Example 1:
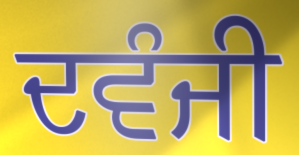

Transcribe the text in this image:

ਦਵੰਜੀ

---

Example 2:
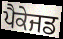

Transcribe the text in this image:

ਪੈਕੇਜਡ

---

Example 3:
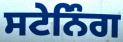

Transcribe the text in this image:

ਸਟੇਨਿੰਗ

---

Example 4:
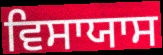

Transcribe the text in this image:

ਵਿਸਾਯਾਸ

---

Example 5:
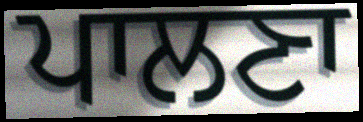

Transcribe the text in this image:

ਪਾਲਣਾ